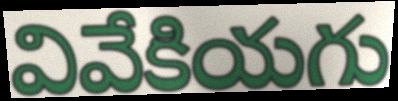
వివేకియగు